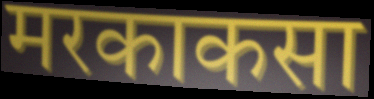
मरकाकसा